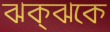
ঝক্‌ঝকে